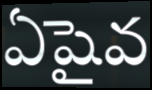
ఏషైవ